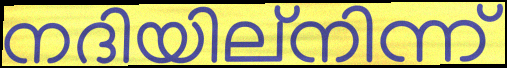
നദിയില്നിന്ന്